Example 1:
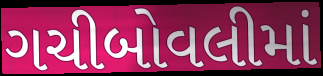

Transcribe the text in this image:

ગચીબોવલીમાં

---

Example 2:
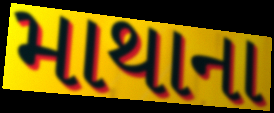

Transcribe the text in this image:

માથાના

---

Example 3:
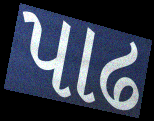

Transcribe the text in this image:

પાઢ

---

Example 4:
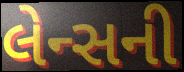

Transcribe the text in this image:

લેન્સની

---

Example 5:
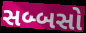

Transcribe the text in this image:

સબ્બસો